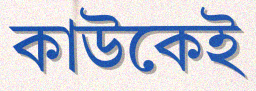
কাউকেই